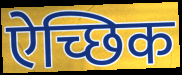
ऐच्छिक